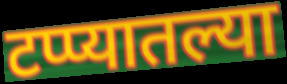
टप्प्यातल्या